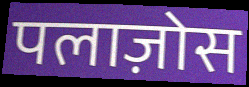
पलाज़ोस